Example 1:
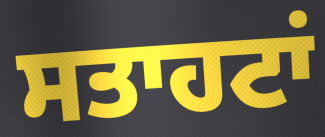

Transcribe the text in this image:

ਸਤਾਹਟਾਂ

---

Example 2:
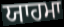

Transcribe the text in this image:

ਯਾਹਮਾ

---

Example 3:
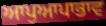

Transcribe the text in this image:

ਆਪੁਆਪਾਭਾਵ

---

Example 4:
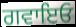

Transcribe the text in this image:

ਗਵਾਇਓ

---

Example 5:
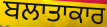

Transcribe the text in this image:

ਬਲਾਤਾਕਾਰ